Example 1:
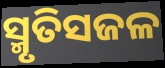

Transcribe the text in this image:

ସ୍ମୃତିସଜଳ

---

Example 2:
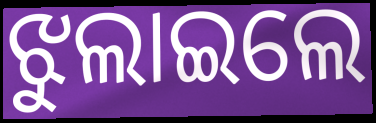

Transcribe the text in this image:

ଝୁଲାଇଲେ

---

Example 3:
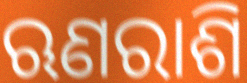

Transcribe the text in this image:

ଋଣରାଶି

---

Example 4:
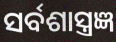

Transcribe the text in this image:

ସର୍ବଶାସ୍ତ୍ରଜ୍ଞ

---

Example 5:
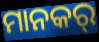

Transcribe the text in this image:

ମାନକର୍